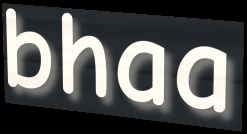
bhaa